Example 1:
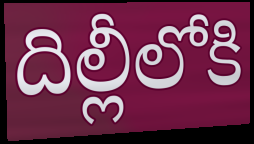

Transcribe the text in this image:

దిల్లీలోకి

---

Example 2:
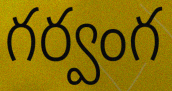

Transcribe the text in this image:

గర్వంగ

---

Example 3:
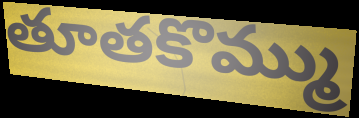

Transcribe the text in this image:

తూతకొమ్ము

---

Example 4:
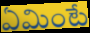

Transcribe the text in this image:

ఏమింటే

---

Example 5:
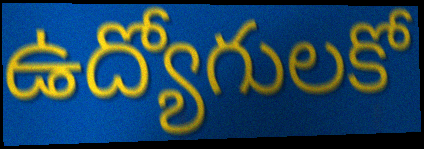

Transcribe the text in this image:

ఉద్యోగులకో